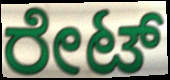
ರೇಟ್